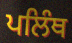
ਪਲਿੰਥ